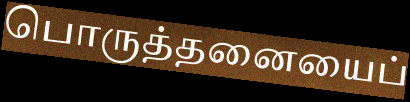
பொருத்தனையைப்